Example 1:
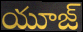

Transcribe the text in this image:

యూజ్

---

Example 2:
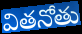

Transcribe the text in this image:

వితనోతు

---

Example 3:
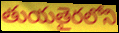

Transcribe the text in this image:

తుయతైరలోని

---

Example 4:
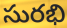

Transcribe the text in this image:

సురభి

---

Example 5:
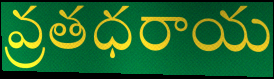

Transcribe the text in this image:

వ్రతధరాయ